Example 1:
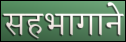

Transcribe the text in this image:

सहभागाने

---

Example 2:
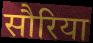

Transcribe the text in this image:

सौरिया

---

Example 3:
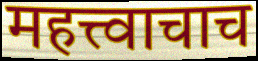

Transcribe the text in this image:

महत्त्वाचाच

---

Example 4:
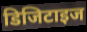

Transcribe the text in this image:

डिजिटाइज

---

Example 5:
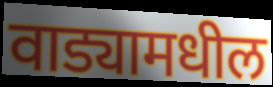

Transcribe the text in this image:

वाड्यामधील